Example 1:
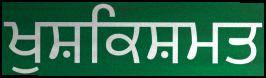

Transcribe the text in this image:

ਖੁਸ਼ਕਿਸ਼ਮਤ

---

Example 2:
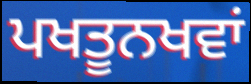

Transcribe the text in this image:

ਪਖਤੂਨਖਵਾਂ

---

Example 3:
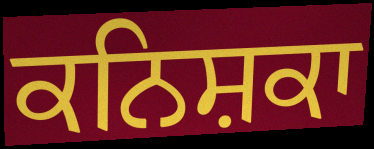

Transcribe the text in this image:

ਕਨਿਸ਼ਕਾ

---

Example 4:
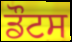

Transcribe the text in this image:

ਡੌਟਸ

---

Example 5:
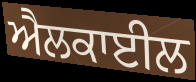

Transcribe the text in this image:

ਐਲਕਾਈਲ